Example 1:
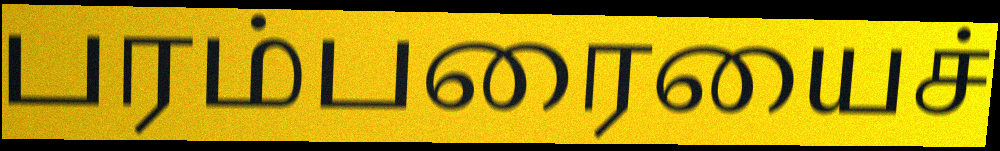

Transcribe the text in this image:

பரம்பரையைச்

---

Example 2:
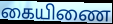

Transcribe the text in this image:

கையிணை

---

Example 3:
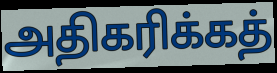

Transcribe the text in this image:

அதிகரிக்கத்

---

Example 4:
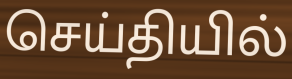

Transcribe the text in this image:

செய்தியில்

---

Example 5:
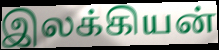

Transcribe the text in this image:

இலக்கியன்